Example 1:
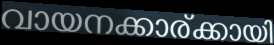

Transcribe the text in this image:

വായനക്കാര്ക്കായി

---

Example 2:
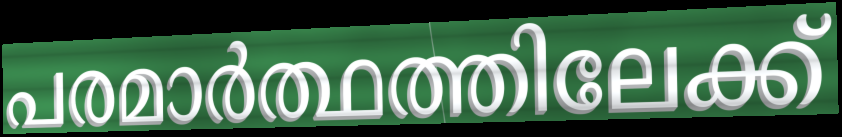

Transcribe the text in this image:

പരമാർത്ഥത്തിലേക്ക്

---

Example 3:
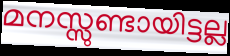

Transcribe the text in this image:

മനസ്സുണ്ടായിട്ടല്ല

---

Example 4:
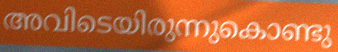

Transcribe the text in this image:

അവിടെയിരുന്നുകൊണ്ടു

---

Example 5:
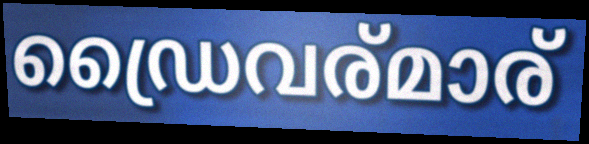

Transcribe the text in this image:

ഡ്രൈവര്മാര്